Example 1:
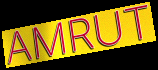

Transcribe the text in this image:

AMRUT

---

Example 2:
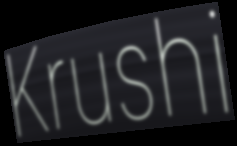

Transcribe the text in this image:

Krushi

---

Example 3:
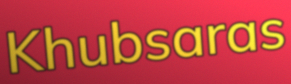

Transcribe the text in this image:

Khubsaras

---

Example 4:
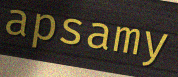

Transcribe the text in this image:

apsamy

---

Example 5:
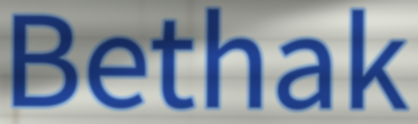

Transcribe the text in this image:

Bethak